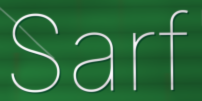
Sarf